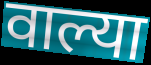
वाल्या